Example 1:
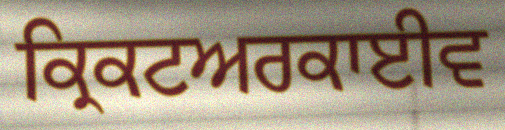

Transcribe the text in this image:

ਕ੍ਰਿਕਟਅਰਕਾਈਵ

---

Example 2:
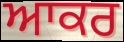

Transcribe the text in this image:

ਆਕਰ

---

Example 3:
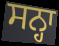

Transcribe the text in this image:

ਸਨ੍ਹਾ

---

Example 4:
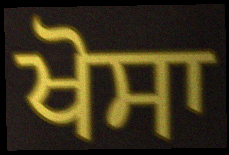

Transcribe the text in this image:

ਖੋਸਾ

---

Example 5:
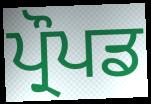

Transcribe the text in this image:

ਪ੍ਰੌਪਡ